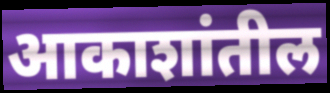
आकाशांतील